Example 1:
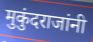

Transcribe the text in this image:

मुकुंदराजांनी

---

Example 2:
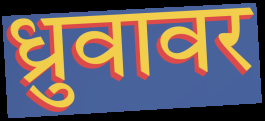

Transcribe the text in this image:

ध्रुवावर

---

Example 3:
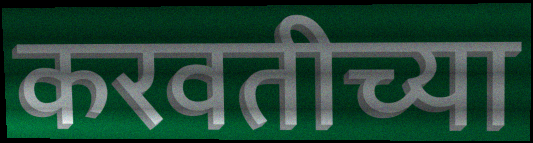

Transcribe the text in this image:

करवतीच्या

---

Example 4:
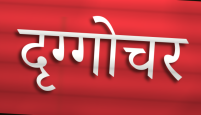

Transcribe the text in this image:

दृग्गोचर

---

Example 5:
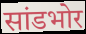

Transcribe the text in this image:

सांडभोर